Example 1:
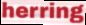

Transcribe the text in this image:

herring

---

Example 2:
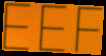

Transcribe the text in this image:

EEF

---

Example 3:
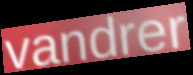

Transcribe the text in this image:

vandrer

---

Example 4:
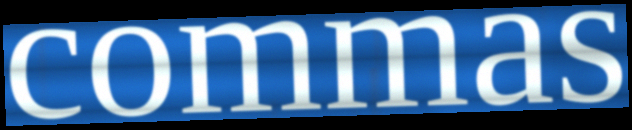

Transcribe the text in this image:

commas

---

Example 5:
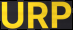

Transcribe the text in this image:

URP